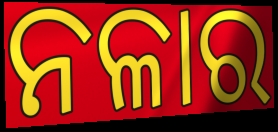
ନଳାର